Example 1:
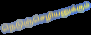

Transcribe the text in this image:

நெடுஞ்செழியனுக்கும்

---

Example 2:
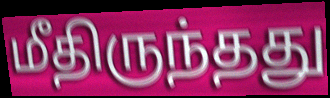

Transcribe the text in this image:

மீதிருந்தது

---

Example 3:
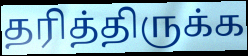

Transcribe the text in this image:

தரித்திருக்க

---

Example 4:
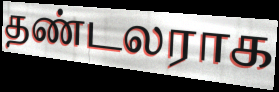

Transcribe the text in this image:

தண்டலராக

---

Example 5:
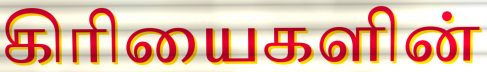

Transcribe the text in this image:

கிரியைகளின்